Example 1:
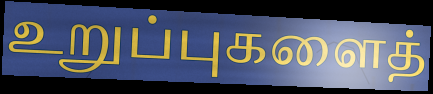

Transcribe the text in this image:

உறுப்புகளைத்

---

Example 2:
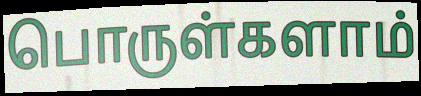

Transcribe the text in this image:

பொருள்களாம்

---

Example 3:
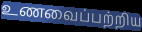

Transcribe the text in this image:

உணவைப்பற்றிய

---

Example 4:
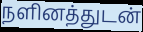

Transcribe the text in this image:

நளினத்துடன்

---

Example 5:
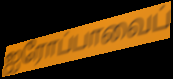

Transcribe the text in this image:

ஐரோப்பாவைப்